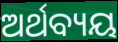
ଅର୍ଥବ୍ୟୟ